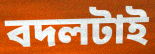
বদলটাই